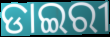
ଡାଇରୀ